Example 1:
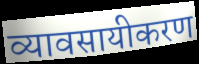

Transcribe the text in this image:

व्यावसायीकरण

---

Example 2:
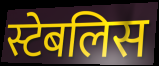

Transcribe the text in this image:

स्टेबलिस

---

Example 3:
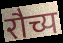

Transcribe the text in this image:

रौच्य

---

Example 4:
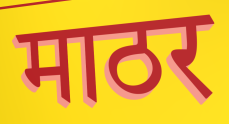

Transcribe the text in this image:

माठर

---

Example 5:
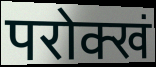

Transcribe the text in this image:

परोक्खं